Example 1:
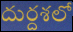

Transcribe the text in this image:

దుర్దశలో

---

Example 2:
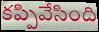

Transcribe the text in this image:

కప్పివేసింది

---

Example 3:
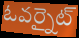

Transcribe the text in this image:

ఓవర్నైట్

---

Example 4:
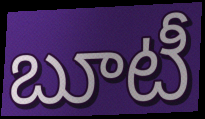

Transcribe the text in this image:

బూటీ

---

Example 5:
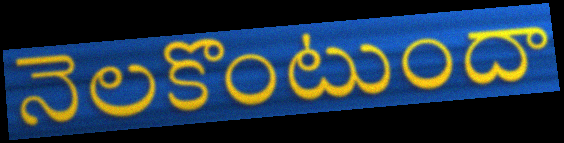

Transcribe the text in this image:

నెలకొంటుందా